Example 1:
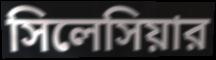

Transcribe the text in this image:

সিলেসিয়ার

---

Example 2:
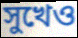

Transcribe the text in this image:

সুখেও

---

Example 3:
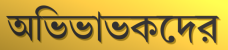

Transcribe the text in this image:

অভিভাভকদের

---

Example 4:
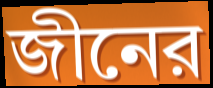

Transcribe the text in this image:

জীনের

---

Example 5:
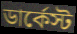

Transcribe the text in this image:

ডার্কেস্ট